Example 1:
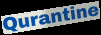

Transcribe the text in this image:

Qurantine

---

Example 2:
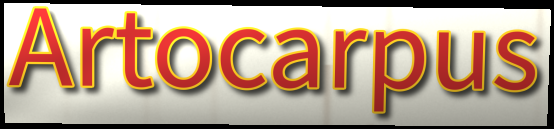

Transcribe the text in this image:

Artocarpus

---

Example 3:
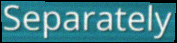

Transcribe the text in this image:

Separately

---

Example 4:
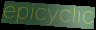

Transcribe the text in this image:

epicyclic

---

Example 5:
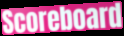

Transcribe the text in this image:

Scoreboard